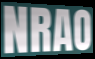
NRAO